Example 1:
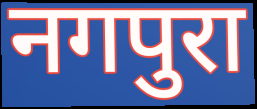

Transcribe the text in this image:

नगपुरा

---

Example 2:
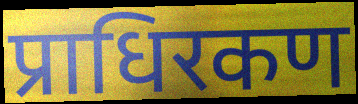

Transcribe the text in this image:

प्राधिरकण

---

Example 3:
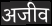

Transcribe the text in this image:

अजीव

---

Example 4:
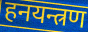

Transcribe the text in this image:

हनयन्त्रण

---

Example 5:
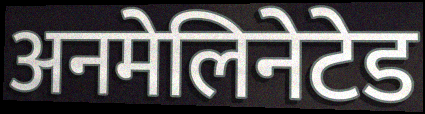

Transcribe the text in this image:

अनमेलिनेटेड